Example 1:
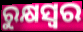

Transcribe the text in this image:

ରୁକ୍ଷସ୍ୱର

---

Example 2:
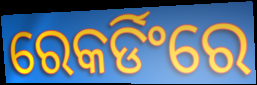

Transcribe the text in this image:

ରେକର୍ଡିଂରେ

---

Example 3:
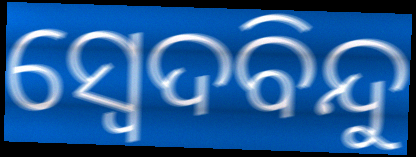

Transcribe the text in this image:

ସ୍ଵେଦବିନ୍ଦୁ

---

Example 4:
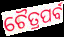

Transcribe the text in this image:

ଚୈତ୍ରପର୍ବ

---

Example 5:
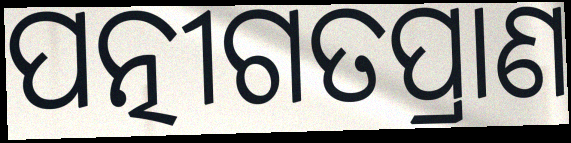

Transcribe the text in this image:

ପତ୍ନୀଗତପ୍ରାଣ